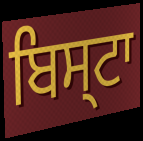
ਬਿਸ੍ਟਾ